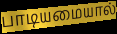
பாடியமையால்